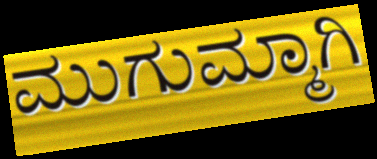
ಮುಗುಮ್ಮಾಗಿ